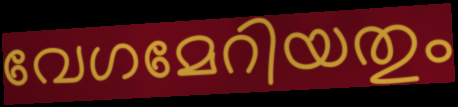
വേഗമേറിയതും